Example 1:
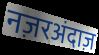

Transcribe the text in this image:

नज़रअंदाज़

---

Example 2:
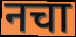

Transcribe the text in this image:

नचा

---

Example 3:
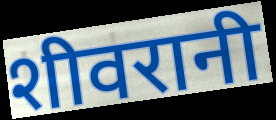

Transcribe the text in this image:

शीवरानी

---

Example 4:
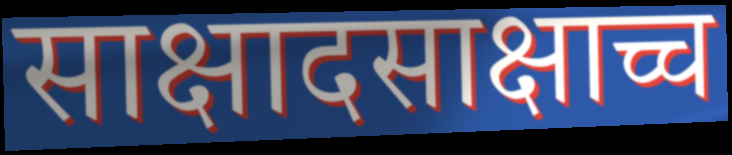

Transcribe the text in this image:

साक्षादसाक्षाच्च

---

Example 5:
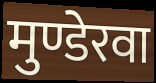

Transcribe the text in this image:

मुण्डेरवा